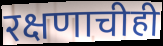
रक्षणाचीही